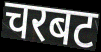
चरबट